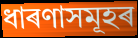
ধাৰণাসমূহৰ